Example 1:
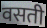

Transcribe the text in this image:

वसती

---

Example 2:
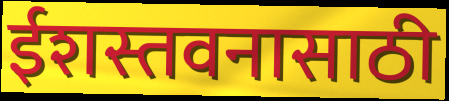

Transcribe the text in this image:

ईशस्तवनासाठी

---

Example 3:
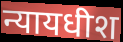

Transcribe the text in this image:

न्यायधीश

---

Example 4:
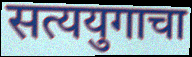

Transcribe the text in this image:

सत्ययुगाचा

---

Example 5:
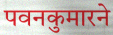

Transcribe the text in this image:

पवनकुमारने